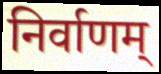
निर्वाणम्